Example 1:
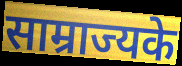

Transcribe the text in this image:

साम्राज्यके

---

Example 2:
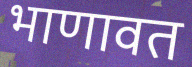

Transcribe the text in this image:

भाणावत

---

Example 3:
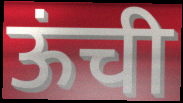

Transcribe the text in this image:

ऊंची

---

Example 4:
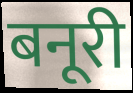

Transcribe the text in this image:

बनूरी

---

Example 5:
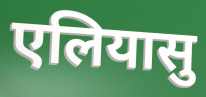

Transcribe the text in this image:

एलियासु